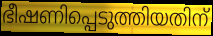
ഭീഷണിപ്പെടുത്തിയതിന്